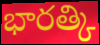
భారత్కి